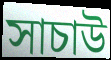
সাচাউ